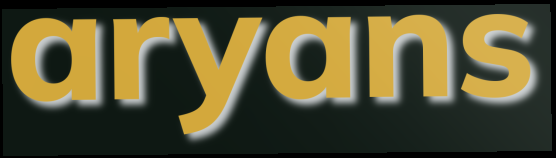
aryans